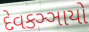
દેવકઞ્ઞાયો